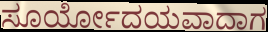
ಸೂರ್ಯೋದಯವಾದಾಗ